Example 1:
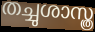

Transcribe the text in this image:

തച്ചുശാസ്ത്ര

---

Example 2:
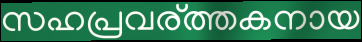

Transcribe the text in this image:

സഹപ്രവര്ത്തകനായ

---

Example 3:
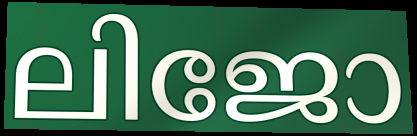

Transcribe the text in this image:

ലിജോ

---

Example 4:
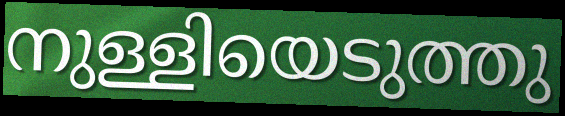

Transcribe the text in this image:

നുള്ളിയെടുത്തു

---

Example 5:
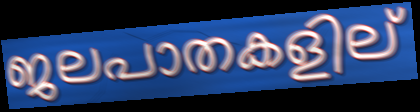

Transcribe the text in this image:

ജലപാതകളില്